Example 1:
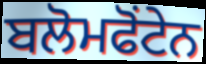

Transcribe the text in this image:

ਬਲੋਮਫੋਂਟੇਨ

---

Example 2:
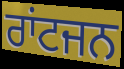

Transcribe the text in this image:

ਰਾਂਟਜਨ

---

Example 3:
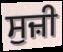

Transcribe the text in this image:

ਸੁਜ਼ੀ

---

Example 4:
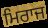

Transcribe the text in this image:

ਮਿਰਾਜ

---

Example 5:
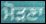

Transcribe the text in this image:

ਮੋੜਣਾ